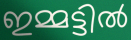
ഇമ്മട്ടിൽ